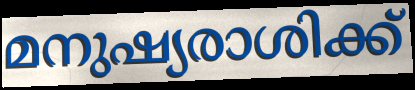
മനുഷ്യരാശിക്ക്